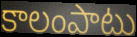
కాలంపాటు